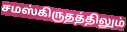
சமஸ்கிருதத்திலும்